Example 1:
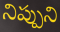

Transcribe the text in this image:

నిప్పుని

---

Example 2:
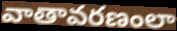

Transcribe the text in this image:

వాతావరణంలా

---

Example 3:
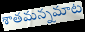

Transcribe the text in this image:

శాతమన్నమాట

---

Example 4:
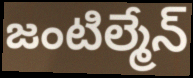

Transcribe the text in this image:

జంటిల్మేన్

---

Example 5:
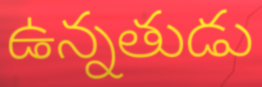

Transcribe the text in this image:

ఉన్నతుడు